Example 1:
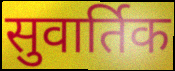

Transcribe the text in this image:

सुवार्तिक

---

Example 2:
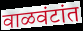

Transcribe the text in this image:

वाळवंटांत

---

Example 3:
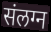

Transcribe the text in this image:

संलग्न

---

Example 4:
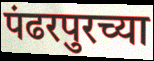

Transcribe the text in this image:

पंढरपुरच्या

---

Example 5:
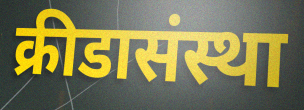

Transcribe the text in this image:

क्रीडासंस्था